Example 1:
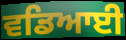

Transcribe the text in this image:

ਵਡਿਆਈ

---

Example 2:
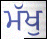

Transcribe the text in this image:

ਮੱਖੁ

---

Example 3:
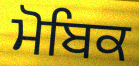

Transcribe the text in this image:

ਮੋਬਿਕ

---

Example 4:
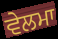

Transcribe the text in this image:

ਵੇਲਮਾ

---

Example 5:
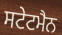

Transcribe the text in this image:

ਸਟੇਟਮੈਨ